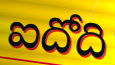
ఐదోది